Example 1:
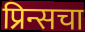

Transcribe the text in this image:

प्रिन्सचा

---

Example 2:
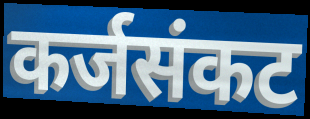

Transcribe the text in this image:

कर्जसंकट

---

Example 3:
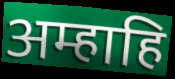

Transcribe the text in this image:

अम्हाहि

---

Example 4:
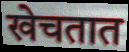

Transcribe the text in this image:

खेचतात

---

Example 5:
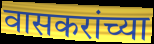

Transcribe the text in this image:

वासकरांच्या